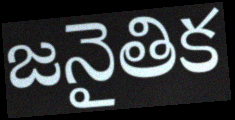
జనైతిక